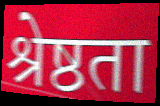
श्रेष्ठता